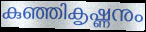
കുഞ്ഞികൃഷ്ണനും